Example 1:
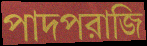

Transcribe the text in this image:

পাদপরাজি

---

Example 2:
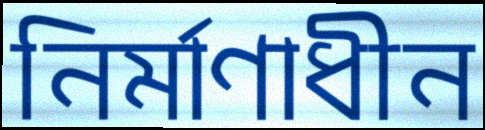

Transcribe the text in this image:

নির্মাণাধীন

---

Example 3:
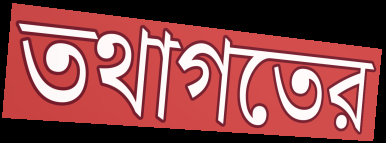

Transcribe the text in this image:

তথাগতের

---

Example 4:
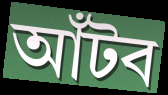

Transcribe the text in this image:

আঁটব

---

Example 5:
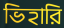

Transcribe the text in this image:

ভিহারি